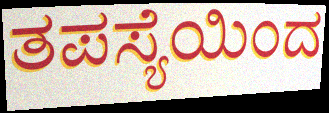
ತಪಸ್ಯೆಯಿಂದ